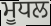
ਮੂਧਲ